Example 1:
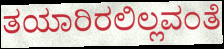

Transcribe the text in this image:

ತಯಾರಿರಲಿಲ್ಲವಂತೆ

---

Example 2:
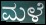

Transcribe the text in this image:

ಮಳೆ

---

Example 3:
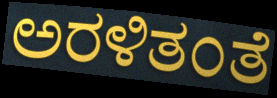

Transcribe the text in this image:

ಅರಳಿತಂತೆ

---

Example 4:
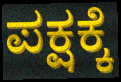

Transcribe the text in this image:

ಪಕ್ಷಕ್ಕೆ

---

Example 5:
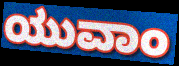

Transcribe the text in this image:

ಯುವಾಂ